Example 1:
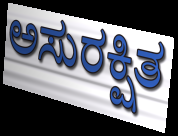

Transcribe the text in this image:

ಅಸುರಕ್ಷಿತ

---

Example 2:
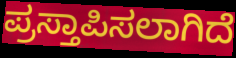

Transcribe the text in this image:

ಪ್ರಸ್ತಾಪಿಸಲಾಗಿದೆ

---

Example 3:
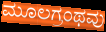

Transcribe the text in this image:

ಮೂಲಗ್ರಂಥವು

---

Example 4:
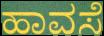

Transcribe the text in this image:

ಹಾವಸೆ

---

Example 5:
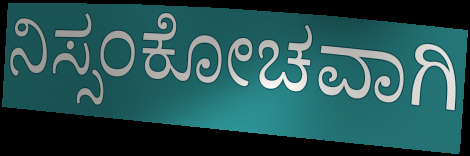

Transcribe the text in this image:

ನಿಸ್ಸಂಕೋಚವಾಗಿ